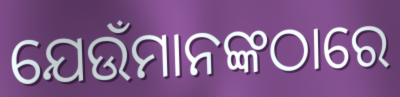
ଯେଉଁମାନଙ୍କଠାରେ